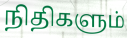
நிதிகளும்